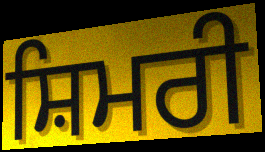
ਸ਼ਿਮਰੀ